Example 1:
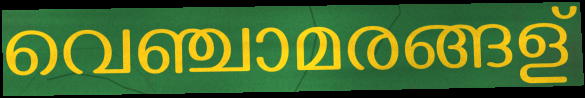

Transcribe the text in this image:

വെഞ്ചാമരങ്ങള്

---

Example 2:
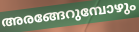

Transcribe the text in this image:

അരങ്ങേറുമ്പോഴും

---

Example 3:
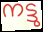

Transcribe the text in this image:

നട്ടു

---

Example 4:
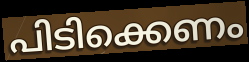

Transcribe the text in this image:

പിടിക്കെണം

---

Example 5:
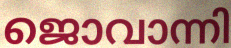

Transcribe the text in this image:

ജൊവാന്നി